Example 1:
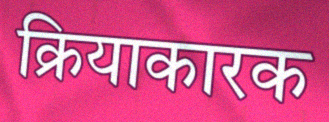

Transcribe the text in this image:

क्रियाकारक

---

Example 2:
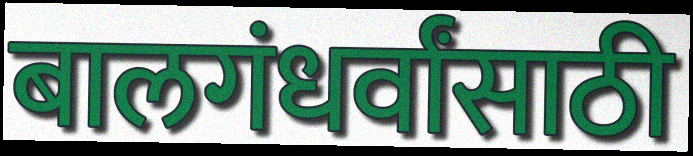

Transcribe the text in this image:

बालगंधर्वांसाठी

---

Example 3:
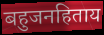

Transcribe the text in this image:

बहुजनहिताय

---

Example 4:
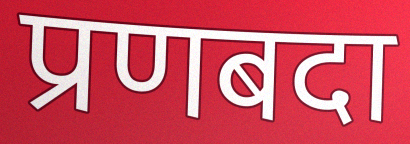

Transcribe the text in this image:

प्रणबदा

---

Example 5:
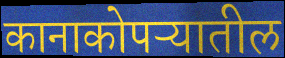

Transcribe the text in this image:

कानाकोपऱ्यातील